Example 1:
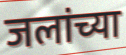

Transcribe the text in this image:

जलांच्या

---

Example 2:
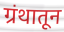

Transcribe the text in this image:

ग्रंथातून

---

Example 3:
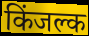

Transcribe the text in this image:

किंजल्क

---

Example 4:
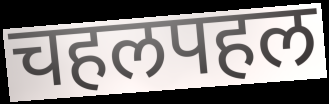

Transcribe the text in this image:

चहलपहल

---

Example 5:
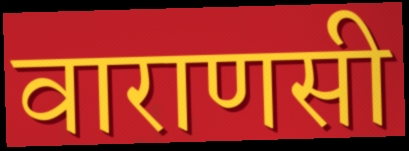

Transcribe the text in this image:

वाराणसी